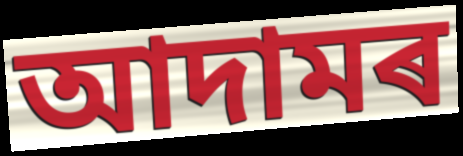
আদামৰ